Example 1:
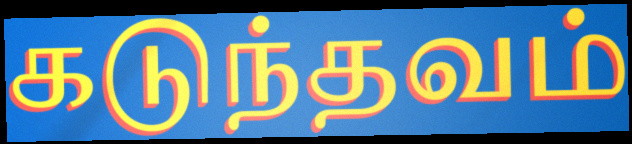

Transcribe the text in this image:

கடுந்தவம்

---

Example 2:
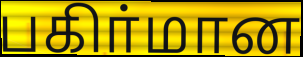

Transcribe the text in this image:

பகிர்மான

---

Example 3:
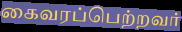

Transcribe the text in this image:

கைவரப்பெற்றவர்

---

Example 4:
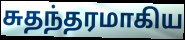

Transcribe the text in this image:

சுதந்தரமாகிய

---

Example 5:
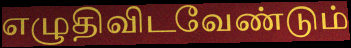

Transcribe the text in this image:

எழுதிவிடவேண்டும்